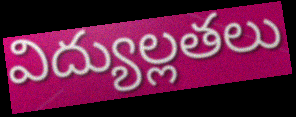
విద్యుల్లతలు